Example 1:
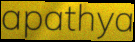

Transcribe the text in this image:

apathya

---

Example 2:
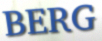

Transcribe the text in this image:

BERG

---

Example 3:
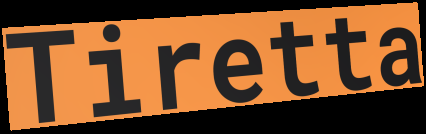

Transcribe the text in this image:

Tiretta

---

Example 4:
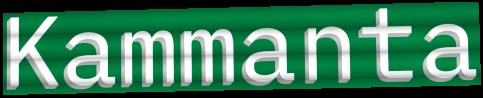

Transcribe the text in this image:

Kammanta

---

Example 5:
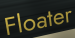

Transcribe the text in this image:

Floater